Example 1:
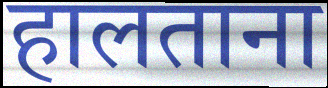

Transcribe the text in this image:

हालताना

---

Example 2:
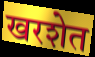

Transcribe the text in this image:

खरशेत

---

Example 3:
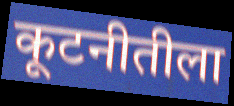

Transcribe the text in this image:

कूटनीतीला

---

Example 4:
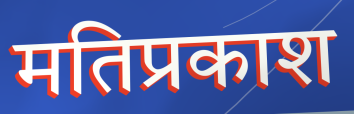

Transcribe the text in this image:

मतिप्रकाश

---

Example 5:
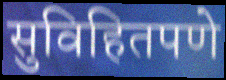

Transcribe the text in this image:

सुविहितपणे